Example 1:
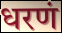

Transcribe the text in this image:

धरणं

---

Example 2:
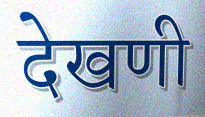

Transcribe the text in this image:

देखणी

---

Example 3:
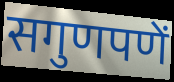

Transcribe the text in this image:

सगुणपणें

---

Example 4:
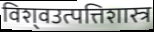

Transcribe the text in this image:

विश्वउत्पत्तिशास्त्र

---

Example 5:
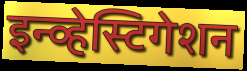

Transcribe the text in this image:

इन्व्हेस्टिगेशन